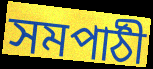
সমপাঠী